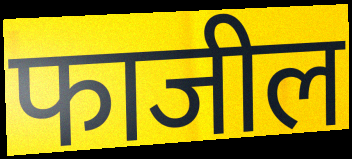
फाजील